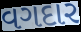
વગદાર